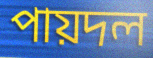
পায়দল